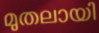
മുതലായി